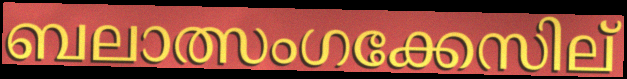
ബലാത്സംഗക്കേസില്